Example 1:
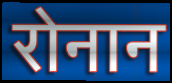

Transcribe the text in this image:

रोनान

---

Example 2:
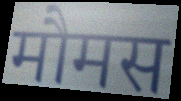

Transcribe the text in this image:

मौमस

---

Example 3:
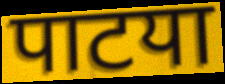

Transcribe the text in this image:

पाटया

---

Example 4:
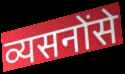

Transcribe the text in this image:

व्यसनोंसे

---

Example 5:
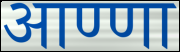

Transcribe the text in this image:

आण्णा